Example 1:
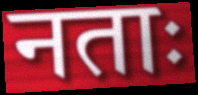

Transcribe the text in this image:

नताः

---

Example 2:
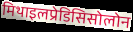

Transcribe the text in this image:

मिथाइलप्रेडिसिसोलोन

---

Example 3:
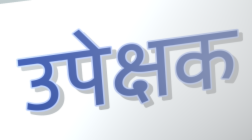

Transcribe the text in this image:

उपेक्षक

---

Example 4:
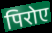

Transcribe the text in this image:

पिरोए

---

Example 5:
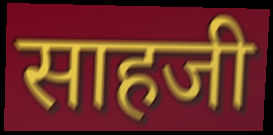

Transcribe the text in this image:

साहजी